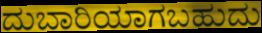
ದುಬಾರಿಯಾಗಬಹುದು